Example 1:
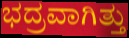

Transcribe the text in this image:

ಭದ್ರವಾಗಿತ್ತು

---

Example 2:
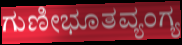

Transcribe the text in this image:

ಗುಣೀಭೂತವ್ಯಂಗ್ಯ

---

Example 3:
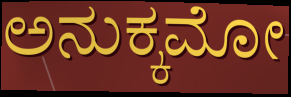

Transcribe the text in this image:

ಅನುಕ್ಕಮೋ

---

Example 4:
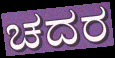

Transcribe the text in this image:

ಚದರ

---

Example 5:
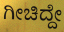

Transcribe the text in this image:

ಗೀಚಿದ್ದೇ